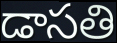
డాసతి